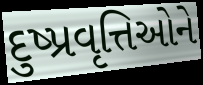
દુષ્પ્રવૃત્તિઓને